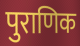
पुराणिक